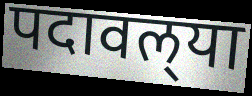
पदावल्या